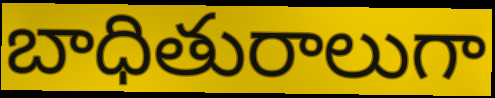
బాధితురాలుగా